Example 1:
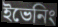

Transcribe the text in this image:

ইভেনিং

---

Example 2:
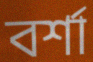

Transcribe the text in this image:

বর্শা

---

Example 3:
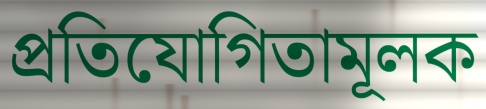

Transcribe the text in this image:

প্রতিযোগিতামূলক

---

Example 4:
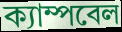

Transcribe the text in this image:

ক্যাম্পবেল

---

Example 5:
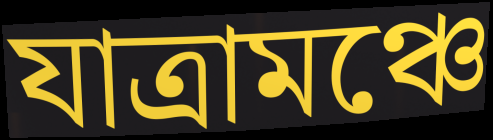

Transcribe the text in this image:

যাত্রামঞ্চে